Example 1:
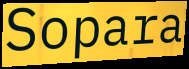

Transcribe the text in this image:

Sopara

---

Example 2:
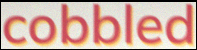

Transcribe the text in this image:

cobbled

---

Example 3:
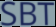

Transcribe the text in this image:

SBT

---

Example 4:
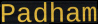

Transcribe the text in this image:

Padham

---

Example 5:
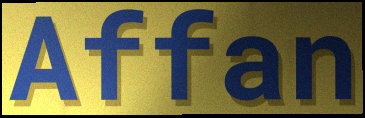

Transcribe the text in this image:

Affan